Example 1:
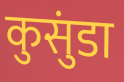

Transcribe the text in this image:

कुसुंडा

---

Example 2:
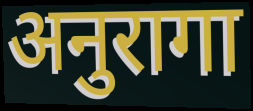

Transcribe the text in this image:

अनुरागा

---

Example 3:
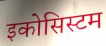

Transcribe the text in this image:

इकोसिस्टम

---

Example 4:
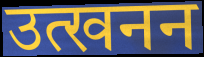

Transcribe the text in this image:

उत्‍खनन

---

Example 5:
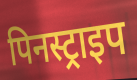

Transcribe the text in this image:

पिनस्ट्राइप